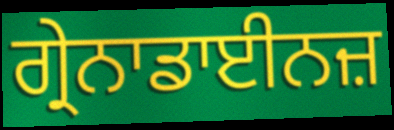
ਗ੍ਰੇਨਾਡਾਈਨਜ਼